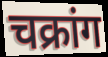
चक्रांग